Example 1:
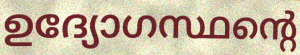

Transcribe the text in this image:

ഉദ്യോഗസ്ഥന്റെ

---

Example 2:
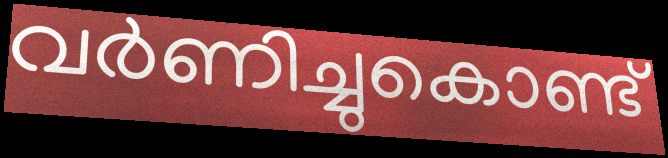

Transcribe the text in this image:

വർണിച്ചുകൊണ്ട്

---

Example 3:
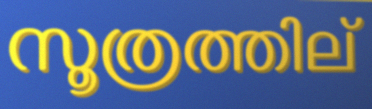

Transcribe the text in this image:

സൂത്രത്തില്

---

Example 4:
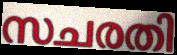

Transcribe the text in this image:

സചരതി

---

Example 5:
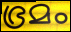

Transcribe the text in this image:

ഭ്രമം